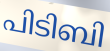
പിടിബി